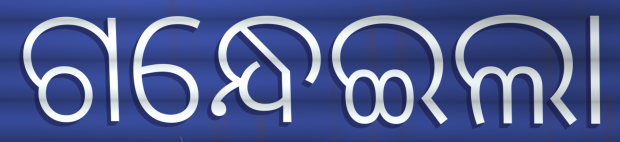
ଗନ୍ଧେଇଲା